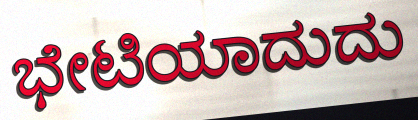
ಭೇಟಿಯಾದುದು